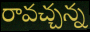
రావచ్చన్న